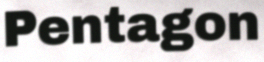
Pentagon